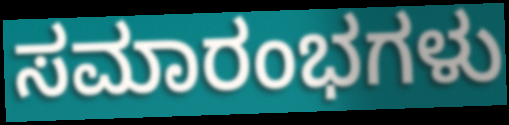
ಸಮಾರಂಭಗಳು